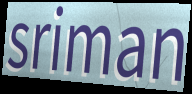
sriman